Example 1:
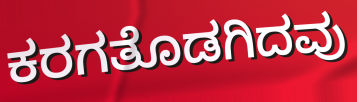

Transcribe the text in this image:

ಕರಗತೊಡಗಿದವು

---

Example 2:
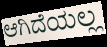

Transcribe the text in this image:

ಆಗಿದೆಯಲ್ಲ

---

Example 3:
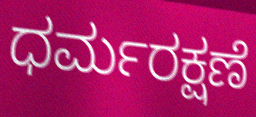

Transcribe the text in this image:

ಧರ್ಮರಕ್ಷಣೆ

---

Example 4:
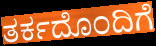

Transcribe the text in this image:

ತರ್ಕದೊಂದಿಗೆ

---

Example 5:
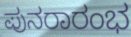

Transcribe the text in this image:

ಪುನರಾರಂಭ